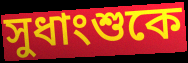
সুধাংশুকে